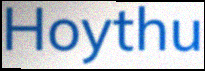
Hoythu